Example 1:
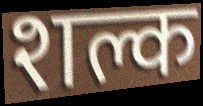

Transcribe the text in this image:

शल्क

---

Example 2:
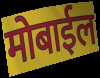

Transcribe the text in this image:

मोबाईल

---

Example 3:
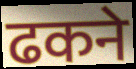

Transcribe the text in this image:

ढकने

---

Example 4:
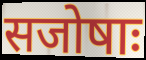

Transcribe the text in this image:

सजोषाः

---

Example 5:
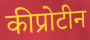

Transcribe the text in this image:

कीप्रोटीन